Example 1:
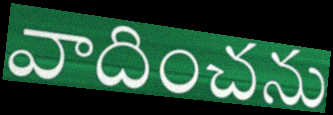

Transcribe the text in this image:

వాదించను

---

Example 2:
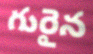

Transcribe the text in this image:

గురైన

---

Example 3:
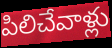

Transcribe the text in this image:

పిలిచేవాళ్లు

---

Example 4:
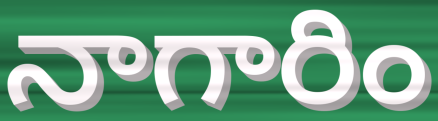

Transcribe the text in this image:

నాగారిం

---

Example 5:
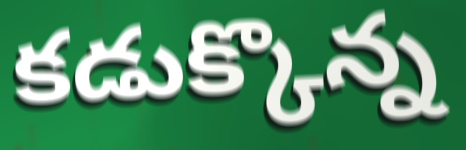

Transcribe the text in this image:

కడుక్కొన్న